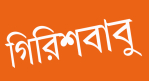
গিরিশবাবু